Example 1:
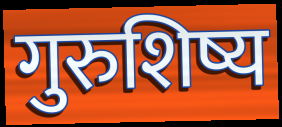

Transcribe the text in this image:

गुरुशिष्य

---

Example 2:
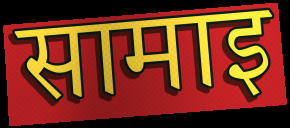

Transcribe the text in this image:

सामाइ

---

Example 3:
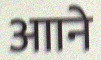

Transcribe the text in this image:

आाने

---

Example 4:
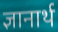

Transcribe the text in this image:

ज्ञानार्थ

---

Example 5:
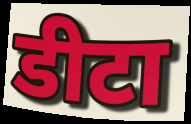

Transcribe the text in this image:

डीटा